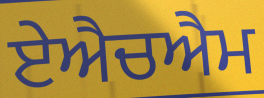
ਏਐਚਐਮ